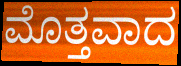
ಮೊತ್ತವಾದ